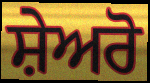
ਸ਼ੇਅਰੋ